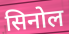
सिनोल